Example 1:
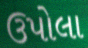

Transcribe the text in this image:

ઉપોલા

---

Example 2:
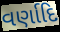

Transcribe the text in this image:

વર્ણાદિ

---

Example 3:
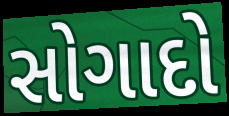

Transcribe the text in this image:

સોગાદો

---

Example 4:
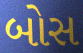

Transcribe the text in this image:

બોસ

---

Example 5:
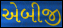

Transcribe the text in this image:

એબીજી